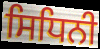
ਸਿਧਿਨੀ